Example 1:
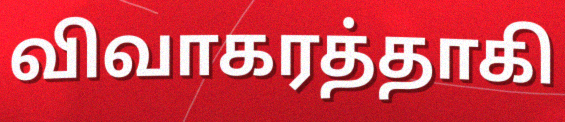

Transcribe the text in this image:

விவாகரத்தாகி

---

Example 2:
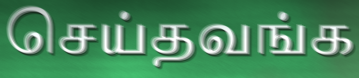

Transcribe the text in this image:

செய்தவங்க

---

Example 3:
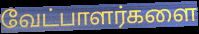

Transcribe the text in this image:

வேட்பாளர்களை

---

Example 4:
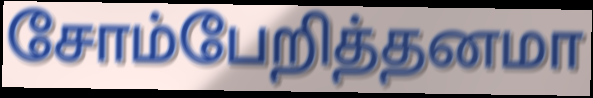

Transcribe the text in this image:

சோம்பேறித்தனமா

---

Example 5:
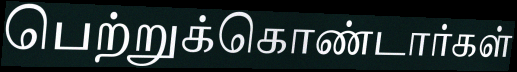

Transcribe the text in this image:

பெற்றுக்கொண்டார்கள்